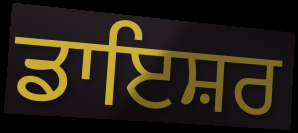
ਡਾਇਸ਼ਰ